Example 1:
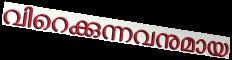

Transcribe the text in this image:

വിറെക്കുന്നവനുമായ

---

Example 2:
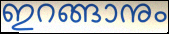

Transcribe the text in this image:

ഇറങ്ങാനും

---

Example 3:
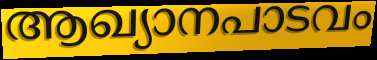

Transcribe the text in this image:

ആഖ്യാനപാടവം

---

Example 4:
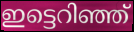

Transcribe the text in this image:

ഇട്ടെറിഞ്ഞ്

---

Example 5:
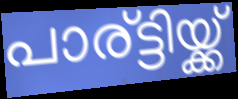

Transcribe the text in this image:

പാര്ട്ടിയ്ക്ക്